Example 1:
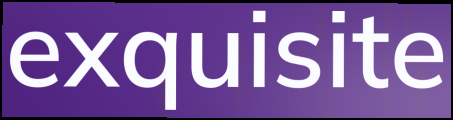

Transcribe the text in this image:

exquisite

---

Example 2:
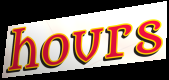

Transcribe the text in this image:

hours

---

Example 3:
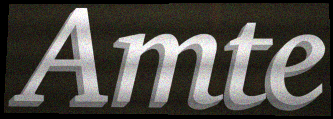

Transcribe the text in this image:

Amte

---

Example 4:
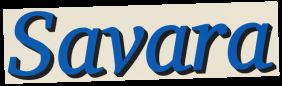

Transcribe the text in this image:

Savara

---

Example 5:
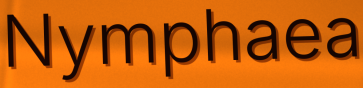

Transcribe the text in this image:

Nymphaea